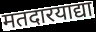
मतदारयाद्या